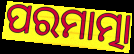
ପରମାତ୍ମା